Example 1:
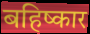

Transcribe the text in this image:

बहिष्‍कार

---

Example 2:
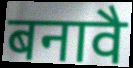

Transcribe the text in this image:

बनावै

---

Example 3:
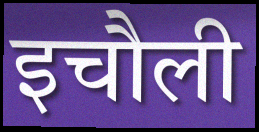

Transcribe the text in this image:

इचौली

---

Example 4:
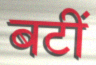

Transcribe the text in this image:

बटीं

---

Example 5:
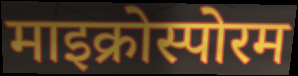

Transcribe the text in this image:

माइक्रोस्पोरम